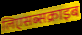
लिएसब्सक्राइब